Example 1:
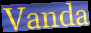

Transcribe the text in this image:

Vanda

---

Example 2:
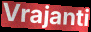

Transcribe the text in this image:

Vrajanti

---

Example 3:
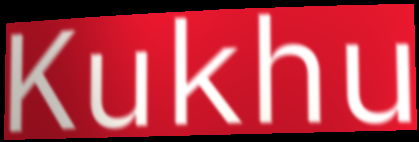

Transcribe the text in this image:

Kukhu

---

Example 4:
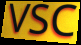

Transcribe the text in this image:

VSC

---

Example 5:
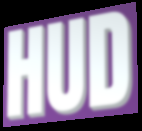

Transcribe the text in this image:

HUD